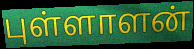
புள்ளாளன்